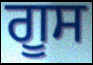
ਗੂਸ